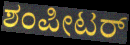
ಶಂಪೀಟರ್